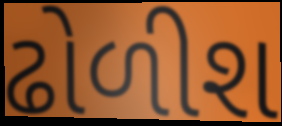
ઢોળીશ